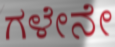
ಗಳೇನೇ